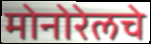
मोनोरेलचे